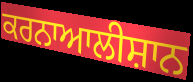
ਕਰਨਾਆਲੀਸ਼ਾਨ